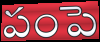
పంపె